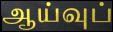
ஆய்வுப்